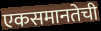
एकसमानतेची